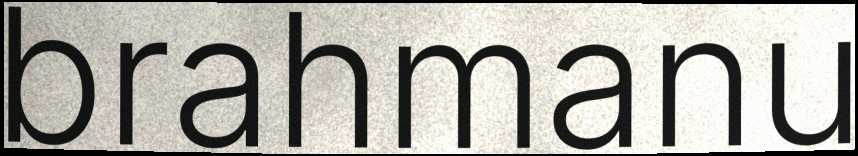
brahmanu